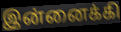
இன்னைக்கி